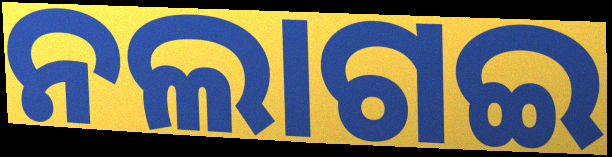
ନଲାଗଇ